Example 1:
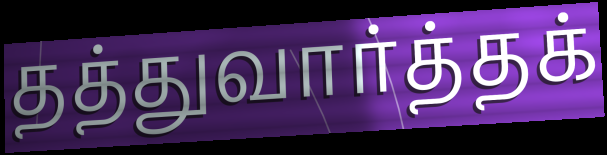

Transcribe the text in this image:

தத்துவார்த்தக்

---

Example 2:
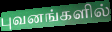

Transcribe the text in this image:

புவனங்களில்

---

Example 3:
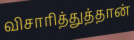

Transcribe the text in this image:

விசாரித்துத்தான்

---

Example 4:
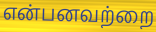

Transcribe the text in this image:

என்பனவற்றை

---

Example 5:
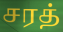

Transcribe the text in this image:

சரத்